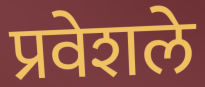
प्रवेशले